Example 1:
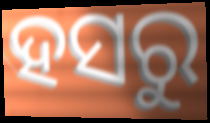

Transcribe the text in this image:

ହସରୁ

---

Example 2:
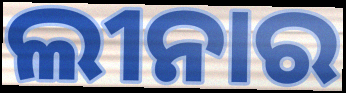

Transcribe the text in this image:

ଲୀନାର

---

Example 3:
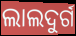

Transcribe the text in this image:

ଲାଲଦୁର୍ଗ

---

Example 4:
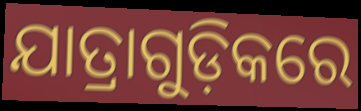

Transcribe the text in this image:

ଯାତ୍ରାଗୁଡ଼ିକରେ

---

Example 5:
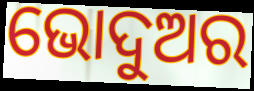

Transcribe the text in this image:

ଭୋଦୁଅର